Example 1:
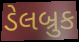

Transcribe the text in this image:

ડેલબ્રુક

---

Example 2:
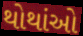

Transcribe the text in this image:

થોથાંઓ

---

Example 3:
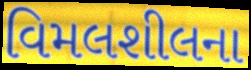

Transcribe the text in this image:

વિમલશીલના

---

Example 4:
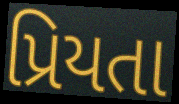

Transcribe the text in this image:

પ્રિયતા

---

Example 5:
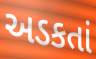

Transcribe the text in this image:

અડકતાં